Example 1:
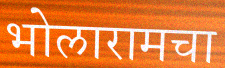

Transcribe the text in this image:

भोलारामचा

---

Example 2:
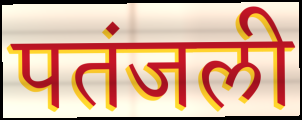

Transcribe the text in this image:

पतंजली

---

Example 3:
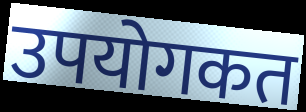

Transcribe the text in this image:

उपयोगकत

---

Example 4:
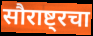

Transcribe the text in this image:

सौराष्ट्रचा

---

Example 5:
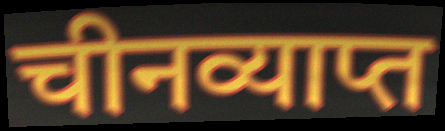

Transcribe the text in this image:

चीनव्याप्त